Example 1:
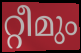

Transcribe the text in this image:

റ്റീമും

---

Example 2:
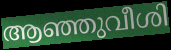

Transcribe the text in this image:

ആഞ്ഞുവീശി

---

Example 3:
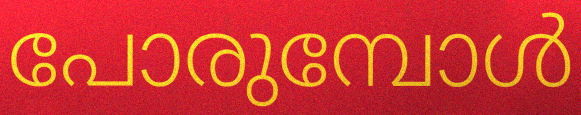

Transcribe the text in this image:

പോരുമ്പോൾ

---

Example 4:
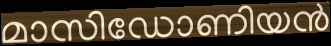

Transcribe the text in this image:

മാസിഡോണിയൻ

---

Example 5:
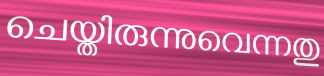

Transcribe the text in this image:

ചെയ്തിരുന്നുവെന്നതു